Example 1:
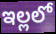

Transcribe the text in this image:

ఇల్లలో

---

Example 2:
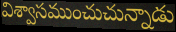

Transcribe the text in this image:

విశ్వాసముంచుచున్నాడు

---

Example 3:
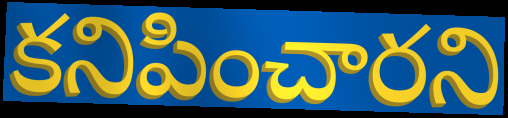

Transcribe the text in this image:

కనిపించారని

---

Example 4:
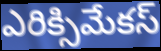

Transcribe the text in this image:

ఎరిక్సిమేకస్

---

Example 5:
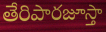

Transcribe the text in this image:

తేరిపారజూస్తా